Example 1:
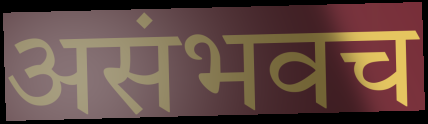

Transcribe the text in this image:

असंभवच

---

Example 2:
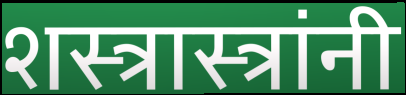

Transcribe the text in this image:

शस्त्रास्त्रांनी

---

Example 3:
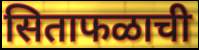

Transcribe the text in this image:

सिताफळाची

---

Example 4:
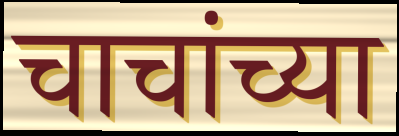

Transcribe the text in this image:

चाचांच्या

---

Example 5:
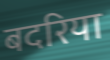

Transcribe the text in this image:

बदरिया